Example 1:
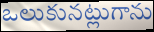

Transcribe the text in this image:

ఒలుకునట్లుగాను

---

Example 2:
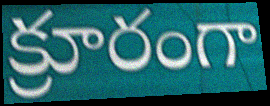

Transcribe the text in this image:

క్రూరంగా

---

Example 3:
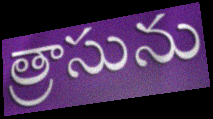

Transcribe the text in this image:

త్రాసును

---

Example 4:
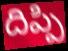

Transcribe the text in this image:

దిప్పి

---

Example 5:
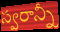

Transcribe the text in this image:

స్వరాన్నీ